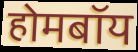
होमबॉय